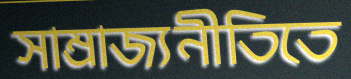
সাম্রাজ্যনীতিতে